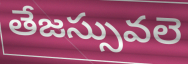
తేజస్సువలె